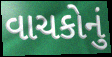
વાચકોનું